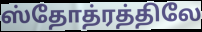
ஸ்தோத்ரத்திலே